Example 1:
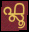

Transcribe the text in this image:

ഫ്ലൂ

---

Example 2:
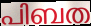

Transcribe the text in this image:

പിബത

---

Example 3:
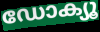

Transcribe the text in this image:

ഡോക്യൂ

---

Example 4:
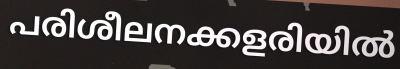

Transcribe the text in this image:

പരിശീലനക്കളരിയിൽ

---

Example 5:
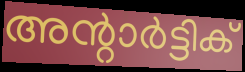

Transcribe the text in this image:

അന്റാർട്ടിക്